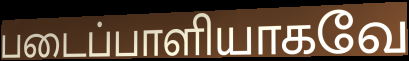
படைப்பாளியாகவே